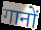
गानों